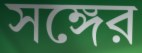
সঙ্গের